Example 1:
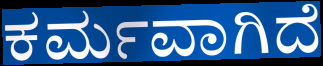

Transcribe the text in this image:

ಕರ್ಮವಾಗಿದೆ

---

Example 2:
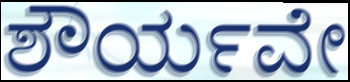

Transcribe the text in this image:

ಶೌರ್ಯವೇ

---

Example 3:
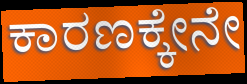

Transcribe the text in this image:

ಕಾರಣಕ್ಕೇನೇ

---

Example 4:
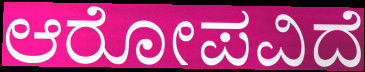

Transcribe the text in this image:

ಆರೋಪವಿದೆ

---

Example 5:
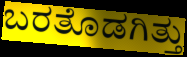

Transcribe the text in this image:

ಬರತೊಡಗಿತ್ತು